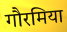
गौरमिया